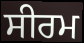
ਸੀਰਮ